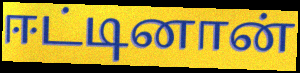
ஈட்டினான்